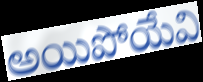
అయిపోయేవి